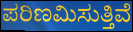
ಪರಿಣಮಿಸುತ್ತಿವೆ